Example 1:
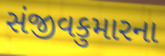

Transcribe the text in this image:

સંજીવકુમારના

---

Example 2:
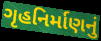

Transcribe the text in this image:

ગૃહનિર્માણનું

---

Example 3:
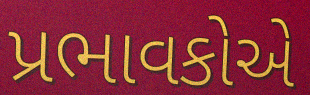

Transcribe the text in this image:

પ્રભાવકોએ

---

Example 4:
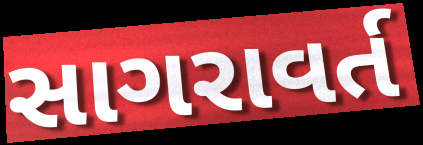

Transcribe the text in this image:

સાગરાવર્ત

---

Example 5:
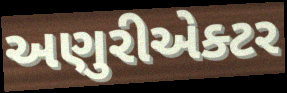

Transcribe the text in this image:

અણુરીએક્ટર